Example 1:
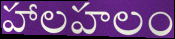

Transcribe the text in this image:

హాలహలం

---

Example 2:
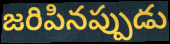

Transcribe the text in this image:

జరిపినప్పుడు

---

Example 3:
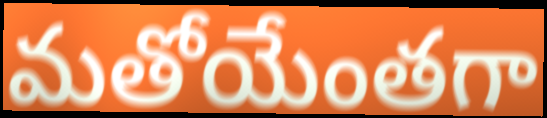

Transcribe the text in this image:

మతోయేంతగా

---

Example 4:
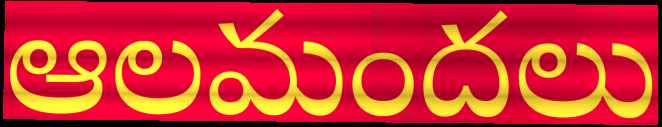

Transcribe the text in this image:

ఆలమందలు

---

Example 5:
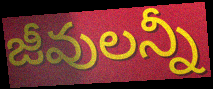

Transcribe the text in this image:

జీవులన్నీ